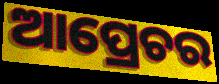
ଆପ୍ରେଚର